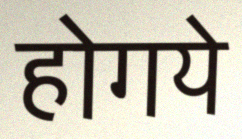
होगये